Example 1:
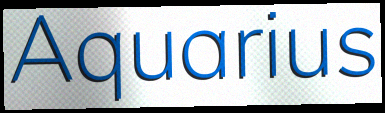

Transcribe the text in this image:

Aquarius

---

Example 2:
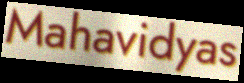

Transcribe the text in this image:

Mahavidyas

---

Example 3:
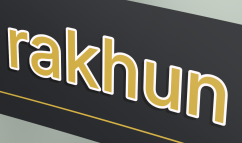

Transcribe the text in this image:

rakhun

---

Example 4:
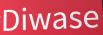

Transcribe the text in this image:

Diwase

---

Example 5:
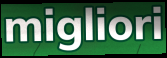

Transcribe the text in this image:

migliori